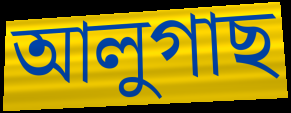
আলুগাছ